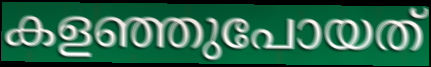
കളഞ്ഞുപോയത്